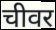
चीवर